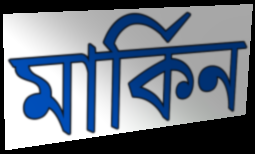
মার্কিন